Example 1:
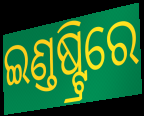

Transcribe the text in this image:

ଇଣ୍ଡଷ୍ଟ୍ରିରେ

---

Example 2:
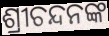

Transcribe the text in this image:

ଶ୍ରୀଚନ୍ଦନଙ୍କ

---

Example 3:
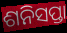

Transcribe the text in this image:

ଶନିସପ୍ତା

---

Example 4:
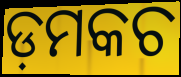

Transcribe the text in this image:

ଡ଼ମକଚ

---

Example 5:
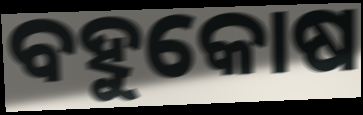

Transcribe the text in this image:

ବହୁକୋଷ